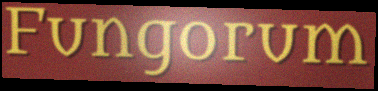
Fungorum